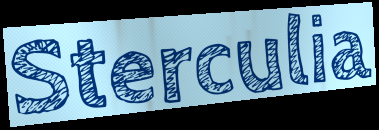
Sterculia